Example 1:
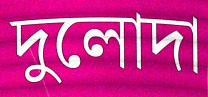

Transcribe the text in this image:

দুলোদা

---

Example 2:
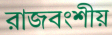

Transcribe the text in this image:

রাজবংশীয়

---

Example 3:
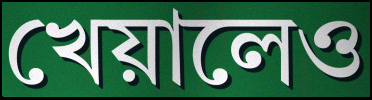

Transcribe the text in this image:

খেয়ালেও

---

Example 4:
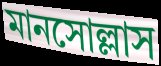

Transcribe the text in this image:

মানসোল্লাস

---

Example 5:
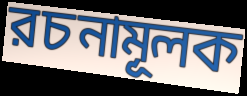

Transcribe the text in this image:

রচনামূলক